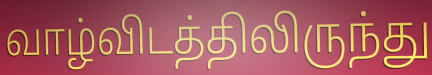
வாழ்விடத்திலிருந்து